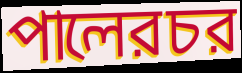
পালেরচর